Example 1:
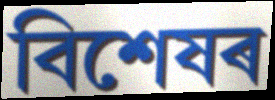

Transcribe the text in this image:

বিশেষৰ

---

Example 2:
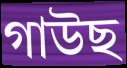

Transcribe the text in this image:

গাউছ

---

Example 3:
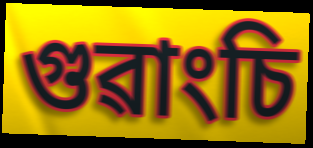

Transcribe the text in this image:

গুৱাংচি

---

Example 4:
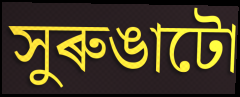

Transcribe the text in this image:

সুৰুঙাটো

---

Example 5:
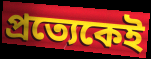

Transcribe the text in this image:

প্ৰত্যেকেই